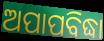
ଅପାପବିଦ୍ଧା